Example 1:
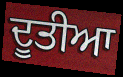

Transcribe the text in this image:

ਦੂਤੀਆ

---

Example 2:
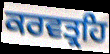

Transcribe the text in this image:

ਕਰਵਤ੍ਰਹਿ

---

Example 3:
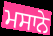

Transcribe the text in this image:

ਮਸਾਨੇ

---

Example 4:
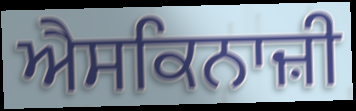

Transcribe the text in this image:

ਐਸਕਿਨਾਜ਼ੀ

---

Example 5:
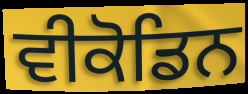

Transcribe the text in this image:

ਵੀਕੋਡਿਨ